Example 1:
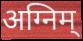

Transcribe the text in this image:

अग्निम्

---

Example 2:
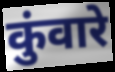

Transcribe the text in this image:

कुंवारे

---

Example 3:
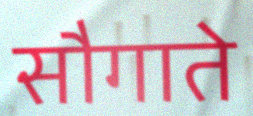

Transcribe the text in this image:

सौगाते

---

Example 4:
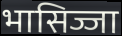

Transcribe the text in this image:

भासिज्जा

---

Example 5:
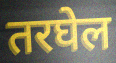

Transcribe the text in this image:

तरघेल